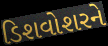
ડિશવોશરને